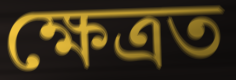
ক্ষেত্ৰত